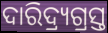
ଦାରିଦ୍ର୍ୟଗ୍ରସ୍ତ